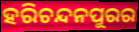
ହରିଚନ୍ଦନପୁରର